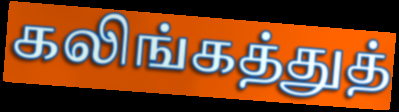
கலிங்கத்துத்